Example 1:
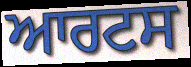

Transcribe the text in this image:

ਆਰਟਸ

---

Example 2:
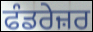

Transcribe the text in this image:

ਫੰਡਰੇਜ਼ਰ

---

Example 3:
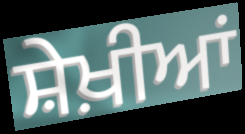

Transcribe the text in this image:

ਸ਼ੇਖ਼ੀਆਂ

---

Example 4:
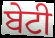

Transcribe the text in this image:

ਬੇਟੀ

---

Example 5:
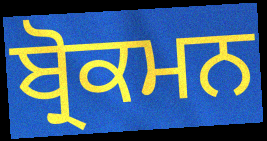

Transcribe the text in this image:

ਬ੍ਰੋਕਮਨ